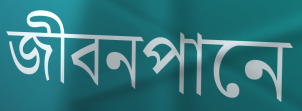
জীবনপানে